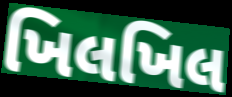
ખિલખિલ